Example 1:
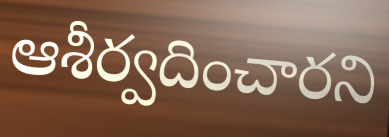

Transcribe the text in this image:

ఆశీర్వదించారని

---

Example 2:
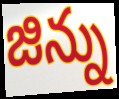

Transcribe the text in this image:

జిన్ను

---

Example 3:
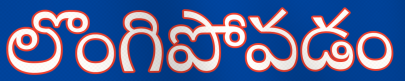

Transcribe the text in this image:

లొంగిపోవడం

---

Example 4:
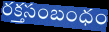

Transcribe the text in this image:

రక్తసంబంధం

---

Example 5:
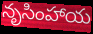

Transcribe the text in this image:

నృసింహాయ